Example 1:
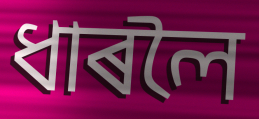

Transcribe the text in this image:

ধাৰলৈ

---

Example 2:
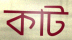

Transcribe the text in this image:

কাট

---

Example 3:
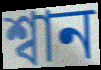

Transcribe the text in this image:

শ্বান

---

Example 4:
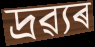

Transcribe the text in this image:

দ্ৰৱ্যৰ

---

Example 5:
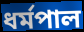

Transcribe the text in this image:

ধৰ্মপাল